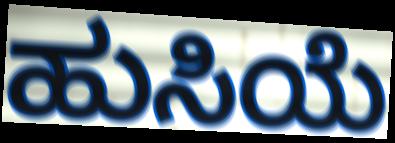
ಹುಸಿಯೆ